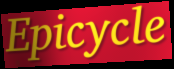
Epicycle